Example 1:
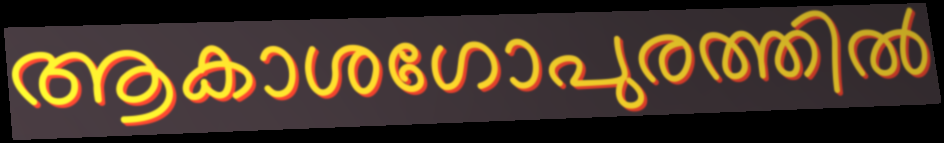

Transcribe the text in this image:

ആകാശഗോപുരത്തിൽ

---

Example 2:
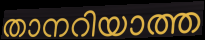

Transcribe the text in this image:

താനറിയാത്ത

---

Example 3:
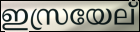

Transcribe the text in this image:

ഇസ്രയേല്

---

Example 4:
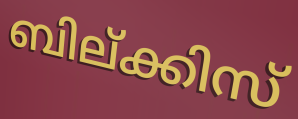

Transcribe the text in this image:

ബില്ക്കിസ്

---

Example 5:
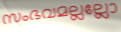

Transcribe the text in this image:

സംഭവമല്ലല്ലോ